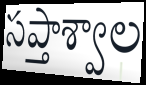
సప్తాశ్వాల